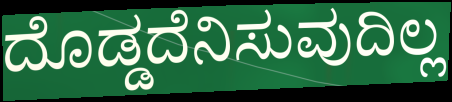
ದೊಡ್ಡದೆನಿಸುವುದಿಲ್ಲ